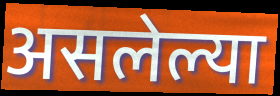
असलेल्या